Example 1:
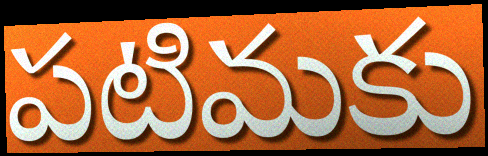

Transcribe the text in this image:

పటిమకు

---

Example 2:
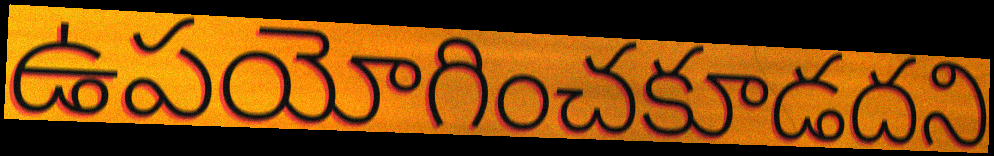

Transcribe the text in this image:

ఉపయోగించకూడదని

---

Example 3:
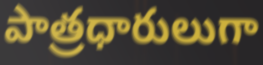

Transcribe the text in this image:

పాత్రధారులుగా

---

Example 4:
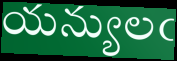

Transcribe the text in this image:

యన్యులఁ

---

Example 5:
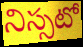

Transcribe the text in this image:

నిస్సటో